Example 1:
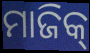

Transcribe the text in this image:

ମାଜିକ୍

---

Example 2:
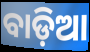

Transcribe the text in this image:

ବାଡ଼ିଆ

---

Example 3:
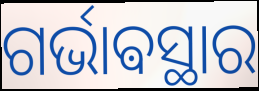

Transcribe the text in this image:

ଗର୍ଭାଵସ୍ଥାର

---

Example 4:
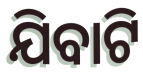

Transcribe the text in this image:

ଯିବାଟି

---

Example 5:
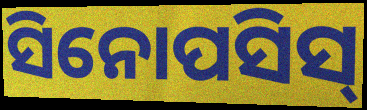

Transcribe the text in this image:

ସିନୋପସିସ୍